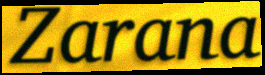
Zarana